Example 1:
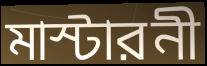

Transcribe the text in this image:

মাস্টারনী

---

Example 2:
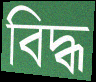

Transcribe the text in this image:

বিদ্ধ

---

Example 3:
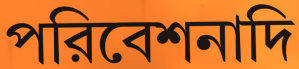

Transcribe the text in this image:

পরিবেশনাদি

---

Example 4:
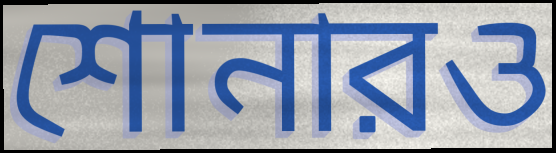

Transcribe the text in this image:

শোনারও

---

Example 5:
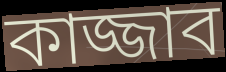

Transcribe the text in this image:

কাজ্জাব